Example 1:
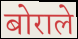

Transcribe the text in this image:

बोराले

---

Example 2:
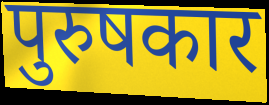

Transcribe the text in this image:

पुरुषकार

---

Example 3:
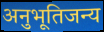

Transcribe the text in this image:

अनुभूतिजन्य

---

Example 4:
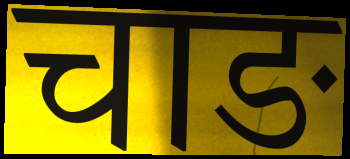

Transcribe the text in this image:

चाङ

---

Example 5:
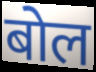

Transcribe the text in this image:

बोल